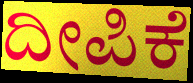
ದೀಪಿಕೆ